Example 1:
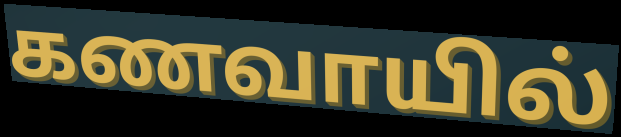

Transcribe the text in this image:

கணவாயில்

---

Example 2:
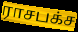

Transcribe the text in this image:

ராசபக்ச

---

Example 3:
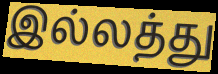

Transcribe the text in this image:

இல்லத்து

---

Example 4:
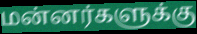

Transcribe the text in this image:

மன்னர்களுக்கு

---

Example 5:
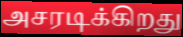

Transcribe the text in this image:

அசரடிக்கிறது